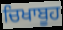
ਚਿਖਾਬੂਹ